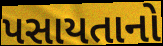
પસાયતાનો